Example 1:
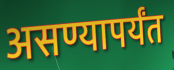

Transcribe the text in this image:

असण्यापर्यंत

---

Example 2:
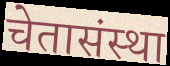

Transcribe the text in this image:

चेतासंस्था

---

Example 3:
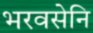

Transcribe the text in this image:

भरवसेनि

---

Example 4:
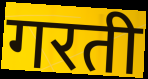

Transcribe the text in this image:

गरती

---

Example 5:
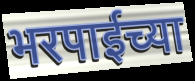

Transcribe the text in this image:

भरपाईच्या